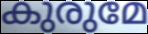
കുരുമേ